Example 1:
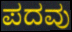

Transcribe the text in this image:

ಪದವು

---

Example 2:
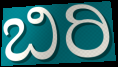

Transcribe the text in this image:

ಬಿರಿ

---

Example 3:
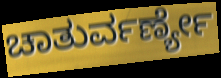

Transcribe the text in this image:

ಚಾತುರ್ವರ್ಣ್ಯೇ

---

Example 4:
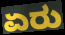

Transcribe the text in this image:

ಏರು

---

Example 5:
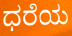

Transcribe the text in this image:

ಧರೆಯ